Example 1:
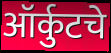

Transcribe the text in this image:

ऑर्कुटचे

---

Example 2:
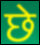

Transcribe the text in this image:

छे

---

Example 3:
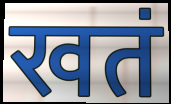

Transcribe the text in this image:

खतं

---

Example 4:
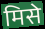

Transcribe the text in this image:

मिसे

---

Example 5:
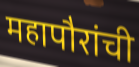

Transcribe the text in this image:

महापौरांची